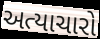
અત્યાચારો